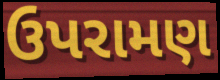
ઉપરામણ